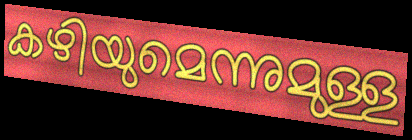
കഴിയുമെന്നുമുള്ള